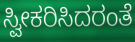
ಸ್ವೀಕರಿಸಿದರಂತೆ